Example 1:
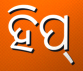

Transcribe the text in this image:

ହିପ୍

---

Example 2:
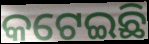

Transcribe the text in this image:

କଟେଇଛି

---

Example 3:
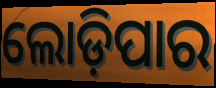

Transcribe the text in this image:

ଲୋଡ଼ିପାର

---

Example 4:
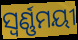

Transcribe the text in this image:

ସ୍ୱର୍ଣ୍ଣମୟୀ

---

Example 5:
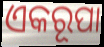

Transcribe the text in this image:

ଏକରୂପା